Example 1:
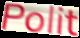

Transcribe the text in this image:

Polit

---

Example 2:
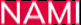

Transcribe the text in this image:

NAMI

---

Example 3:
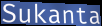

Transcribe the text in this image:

Sukanta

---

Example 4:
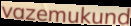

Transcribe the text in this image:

vazemukund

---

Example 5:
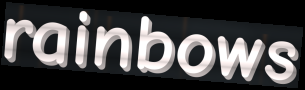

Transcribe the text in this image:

rainbows